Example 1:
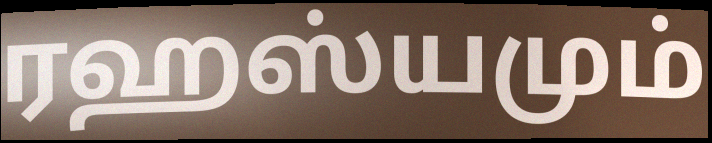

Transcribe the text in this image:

ரஹஸ்யமும்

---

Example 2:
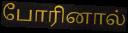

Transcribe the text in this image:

போரினால்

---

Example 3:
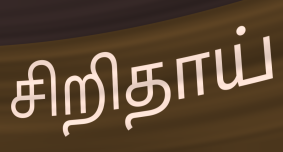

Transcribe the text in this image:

சிறிதாய்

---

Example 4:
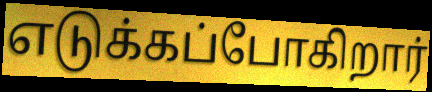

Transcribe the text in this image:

எடுக்கப்போகிறார்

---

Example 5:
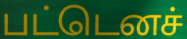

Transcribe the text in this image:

பட்டெனச்